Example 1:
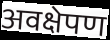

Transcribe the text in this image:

अवक्षेपण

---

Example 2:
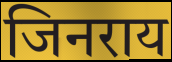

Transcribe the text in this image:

जिनराय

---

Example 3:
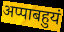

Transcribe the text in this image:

अप्पाबहुयं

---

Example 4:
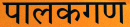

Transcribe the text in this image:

पालकगण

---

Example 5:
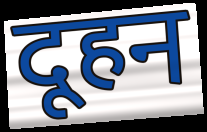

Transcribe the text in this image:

दूहन